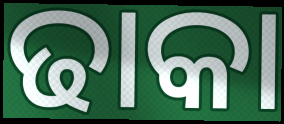
ଢାକା